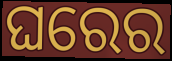
ଘରେର